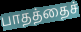
பாதத்தைச்